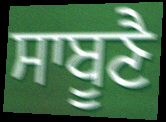
ਸਾਬੂਣੈ